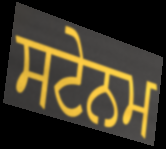
ਸਟੇਨਮ